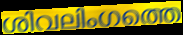
ശിവലിംഗത്തെ